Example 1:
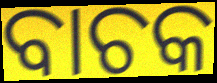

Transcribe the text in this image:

ବାଚକ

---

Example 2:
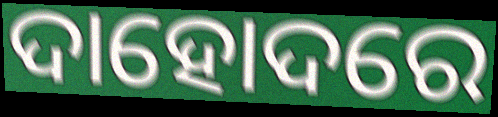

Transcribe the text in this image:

ଦାହୋଦରେ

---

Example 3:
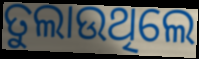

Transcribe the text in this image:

ତୁଲାଉଥିଲେ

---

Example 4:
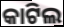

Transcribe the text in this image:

କାଟିଲ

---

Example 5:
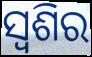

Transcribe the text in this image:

ସ୍ଵଶିର